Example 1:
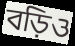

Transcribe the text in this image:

বড়িও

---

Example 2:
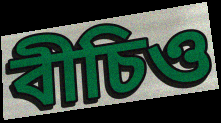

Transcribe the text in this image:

বীচিও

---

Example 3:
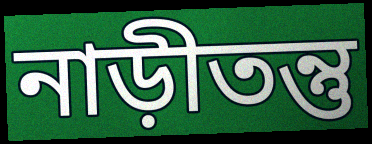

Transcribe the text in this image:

নাড়ীতন্তু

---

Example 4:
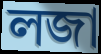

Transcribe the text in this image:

লজা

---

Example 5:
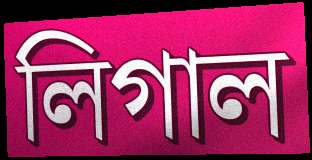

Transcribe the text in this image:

লিগাল